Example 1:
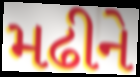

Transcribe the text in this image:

મઢીને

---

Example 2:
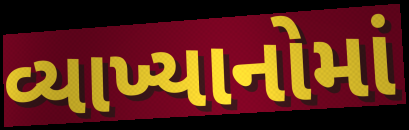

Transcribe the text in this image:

વ્યાખ્યાનોમાં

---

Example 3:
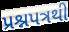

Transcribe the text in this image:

પ્રશ્નપત્રથી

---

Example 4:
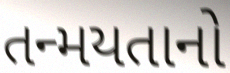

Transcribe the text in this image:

તન્મયતાનો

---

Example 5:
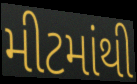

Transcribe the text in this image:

મીટમાંથી